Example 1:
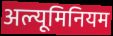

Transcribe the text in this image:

अल्यूमिनियम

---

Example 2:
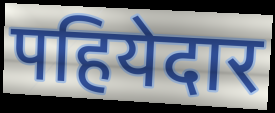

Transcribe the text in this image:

पहियेदार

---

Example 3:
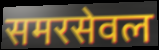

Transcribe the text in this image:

समरसेवल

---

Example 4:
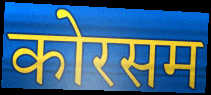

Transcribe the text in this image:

कोरसम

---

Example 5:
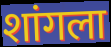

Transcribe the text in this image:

शांगला